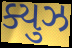
ક્યુઝ